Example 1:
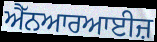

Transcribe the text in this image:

ਐੱਨਆਰਆਈਜ਼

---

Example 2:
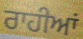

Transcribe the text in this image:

ਰਾਹੀਆਂ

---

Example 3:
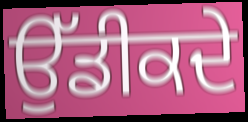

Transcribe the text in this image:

ਉੱਡੀਕਦੇ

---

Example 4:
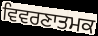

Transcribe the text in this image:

ਵਿਵਰਣਾਤਮਕ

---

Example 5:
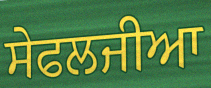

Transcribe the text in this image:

ਸੇਫਲਜੀਆ